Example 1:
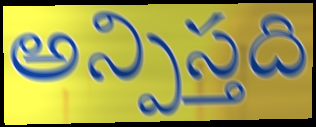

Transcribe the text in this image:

అన్పిస్తది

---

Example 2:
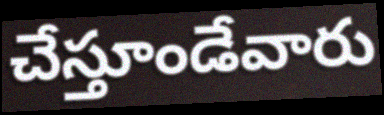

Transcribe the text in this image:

చేస్తూండేవారు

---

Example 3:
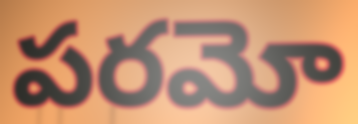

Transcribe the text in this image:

పరమో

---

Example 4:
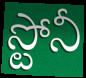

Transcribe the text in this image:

స్టోనీ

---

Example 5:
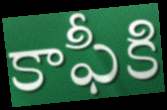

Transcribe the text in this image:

కాఫీకి